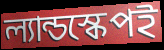
ল্যান্ডস্কেপই